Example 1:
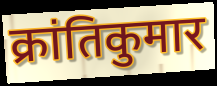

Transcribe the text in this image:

क्रांतिकुमार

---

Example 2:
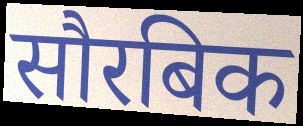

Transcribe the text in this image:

सौरबिक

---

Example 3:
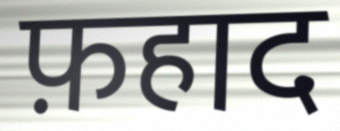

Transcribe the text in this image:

फ़हाद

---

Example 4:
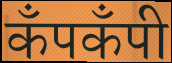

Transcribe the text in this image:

कँपकँपी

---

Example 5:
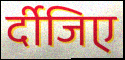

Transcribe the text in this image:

र्दीजिए